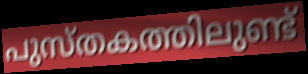
പുസ്തകത്തിലുണ്ട്